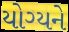
યોગ્યને